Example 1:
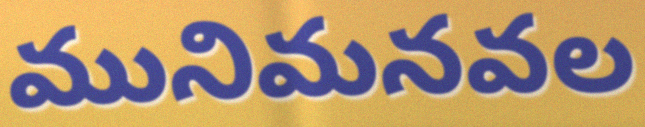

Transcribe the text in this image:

మునిమనవల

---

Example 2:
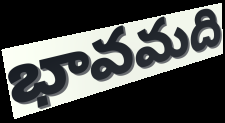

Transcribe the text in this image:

భావమది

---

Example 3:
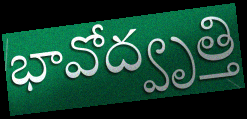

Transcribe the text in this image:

భావోద్వృత్తి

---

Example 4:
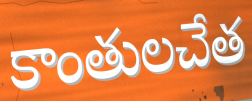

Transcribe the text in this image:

కాంతులచేత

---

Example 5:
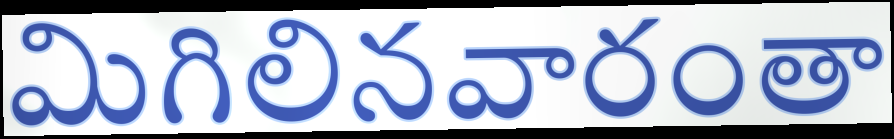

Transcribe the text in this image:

మిగిలినవారంతా